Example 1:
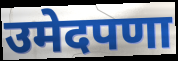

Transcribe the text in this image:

उमेदपणा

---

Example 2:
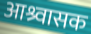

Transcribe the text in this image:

आश्र्वासक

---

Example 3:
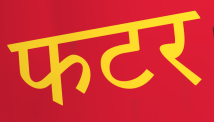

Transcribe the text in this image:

फटर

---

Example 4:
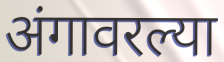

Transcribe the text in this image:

अंगावरल्या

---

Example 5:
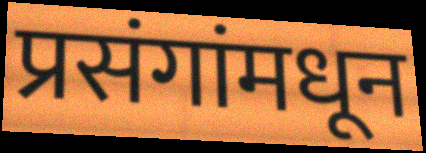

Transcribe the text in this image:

प्रसंगांमधून